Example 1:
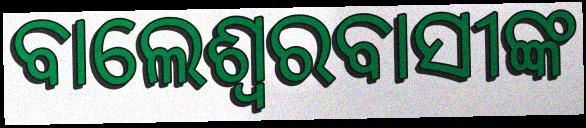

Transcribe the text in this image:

ବାଲେଶ୍ବରବାସୀଙ୍କ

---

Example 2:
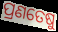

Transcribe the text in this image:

ପ୍ରଣତେଷୁ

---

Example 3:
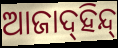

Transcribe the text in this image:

ଆଜାଦ୍‍ହିନ୍ଦ୍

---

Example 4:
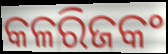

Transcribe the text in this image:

କଳରିଜକଂ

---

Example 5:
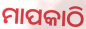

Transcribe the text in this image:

ମାପକାଠି